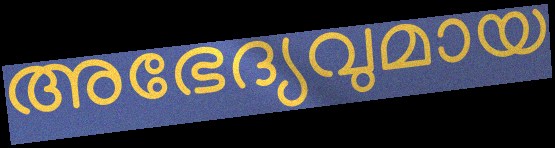
അഭേദ്യവുമായ